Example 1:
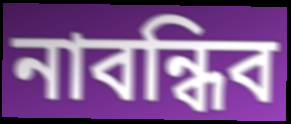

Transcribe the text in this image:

নাবন্ধিব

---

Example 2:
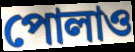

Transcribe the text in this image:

পোলাও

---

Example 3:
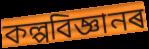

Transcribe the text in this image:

কল্পবিজ্ঞানৰ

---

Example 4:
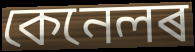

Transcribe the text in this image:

কেনেলৰ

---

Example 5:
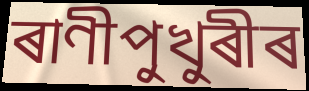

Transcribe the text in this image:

ৰাণীপুখুৰীৰ